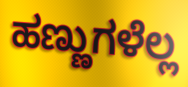
ಹಣ್ಣುಗಳೆಲ್ಲ